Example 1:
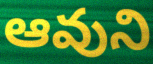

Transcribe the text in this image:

ఆవుని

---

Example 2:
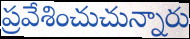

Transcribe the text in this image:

ప్రవేశించుచున్నారు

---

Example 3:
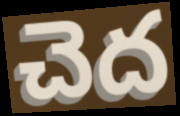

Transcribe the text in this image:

చెద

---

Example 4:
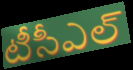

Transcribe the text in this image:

టీసీఎల్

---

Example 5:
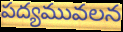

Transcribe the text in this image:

పద్యమువలన